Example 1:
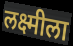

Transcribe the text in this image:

लक्ष्मीला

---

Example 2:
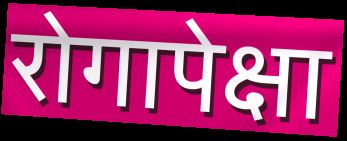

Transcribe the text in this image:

रोगापेक्षा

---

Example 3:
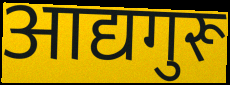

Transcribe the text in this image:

आद्यगुरू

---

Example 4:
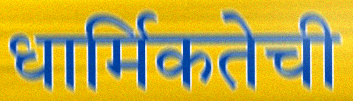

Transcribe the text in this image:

धार्मिकतेची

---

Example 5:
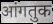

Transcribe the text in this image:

आंगतुक